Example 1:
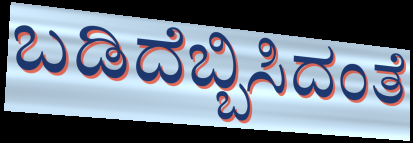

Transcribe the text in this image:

ಬಡಿದೆಬ್ಬಿಸಿದಂತೆ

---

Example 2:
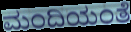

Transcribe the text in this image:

ಮಂದಿಯಂತೆ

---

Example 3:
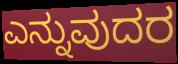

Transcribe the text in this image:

ಎನ್ನುವುದರ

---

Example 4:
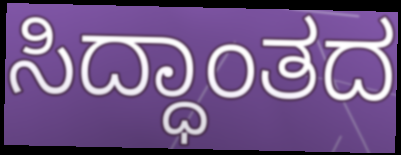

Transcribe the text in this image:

ಸಿದ್ಧಾಂತದ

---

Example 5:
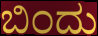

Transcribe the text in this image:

ಬಿಂದು